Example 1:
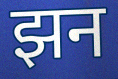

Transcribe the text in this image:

झन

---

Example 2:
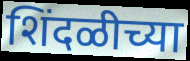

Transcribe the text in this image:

शिंदळीच्या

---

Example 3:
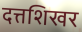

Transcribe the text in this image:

दत्तशिखर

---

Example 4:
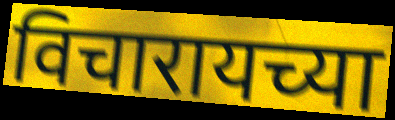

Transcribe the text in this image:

विचारायच्या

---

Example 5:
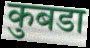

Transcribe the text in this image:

कुबडा